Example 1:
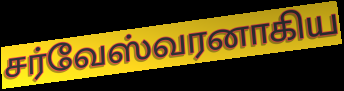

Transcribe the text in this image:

சர்வேஸ்வரனாகிய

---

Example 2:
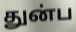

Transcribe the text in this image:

துன்ப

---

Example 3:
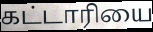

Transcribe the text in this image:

கட்டாரியை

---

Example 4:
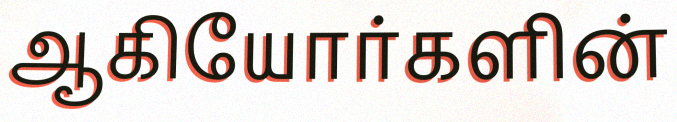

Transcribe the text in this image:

ஆகியோர்களின்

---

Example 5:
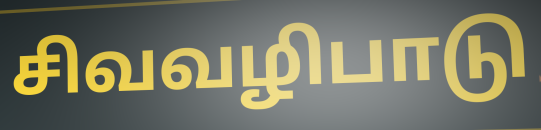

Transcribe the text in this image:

சிவவழிபாடு